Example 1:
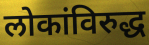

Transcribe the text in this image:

लोकांविरुद्ध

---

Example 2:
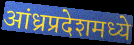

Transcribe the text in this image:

आंध्रप्रदेशमध्ये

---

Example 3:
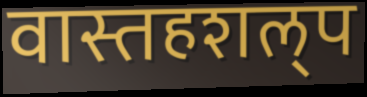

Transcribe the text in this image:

वास्तहशल्प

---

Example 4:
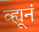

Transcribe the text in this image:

व्ह्यूनं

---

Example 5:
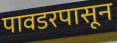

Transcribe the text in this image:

पावडरपासून